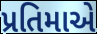
પ્રતિમાએ